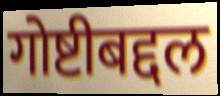
गोष्टीबद्दल